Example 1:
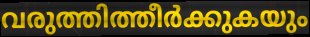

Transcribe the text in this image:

വരുത്തിത്തീർക്കുകയും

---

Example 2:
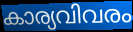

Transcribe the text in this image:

കാര്യവിവരം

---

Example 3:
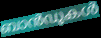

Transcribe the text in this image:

ബാൻഡുകൾ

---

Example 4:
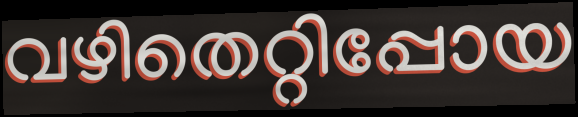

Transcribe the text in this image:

വഴിതെറ്റിപ്പോയ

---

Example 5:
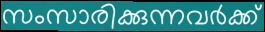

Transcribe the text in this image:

സംസാരിക്കുന്നവർക്ക്